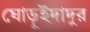
ঘোড়ুইদাদুর